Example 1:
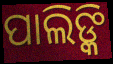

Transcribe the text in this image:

ପାଲିଙ୍କି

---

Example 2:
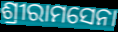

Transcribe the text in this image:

ଶ୍ରୀରାମସେନା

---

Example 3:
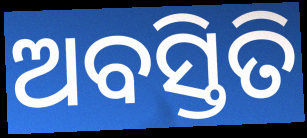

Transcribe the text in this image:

ଅବସ୍ତିତି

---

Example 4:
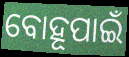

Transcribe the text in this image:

ବୋହୂପାଇଁ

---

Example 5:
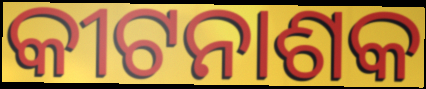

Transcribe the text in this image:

କୀଟନାଶକ